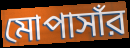
মোপাসাঁর